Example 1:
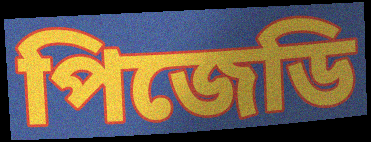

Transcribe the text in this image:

পিজেডি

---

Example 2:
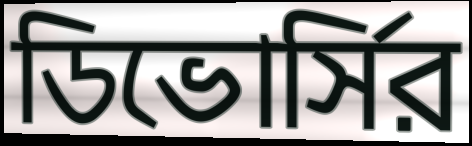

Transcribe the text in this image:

ডিভোর্সির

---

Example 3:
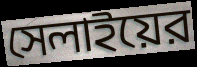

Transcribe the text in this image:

সেলাইয়ের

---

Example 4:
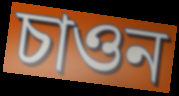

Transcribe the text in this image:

চাওন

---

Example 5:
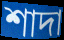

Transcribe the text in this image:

শাদা